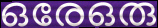
ഒരേഒരു